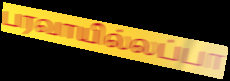
பரவாயில்லப்பா